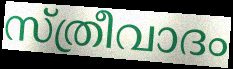
സ്ത്രീവാദം